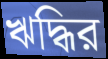
ঋদ্ধির